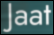
Jaat